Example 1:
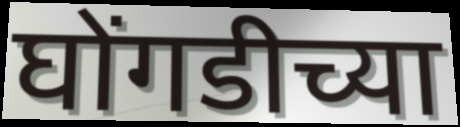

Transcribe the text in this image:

घोंगडीच्या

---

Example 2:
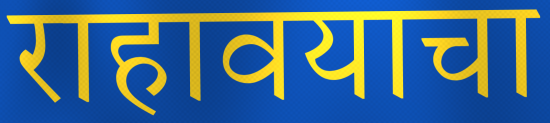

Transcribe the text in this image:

राहावयाचा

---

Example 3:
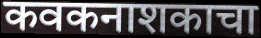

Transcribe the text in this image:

कवकनाशकाचा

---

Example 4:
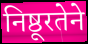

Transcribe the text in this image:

निष्ठूरतेने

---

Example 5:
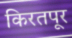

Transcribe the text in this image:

किरतपूर